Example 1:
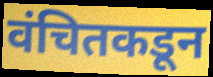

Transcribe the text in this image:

वंचितकडून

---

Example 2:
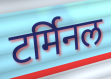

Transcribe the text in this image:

टर्मिनल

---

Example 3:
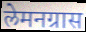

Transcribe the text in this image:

लेमनग्रास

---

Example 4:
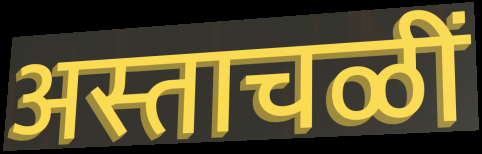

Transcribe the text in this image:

अस्ताचळीं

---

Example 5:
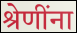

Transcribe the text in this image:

श्रेणींना